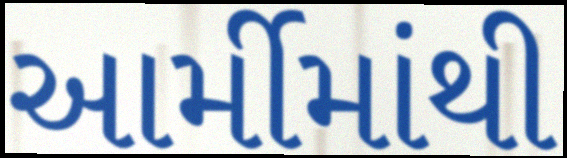
આર્મીમાંથી